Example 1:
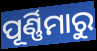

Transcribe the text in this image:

ପୂର୍ଣ୍ଣିମାରୁ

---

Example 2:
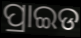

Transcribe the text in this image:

ପ୍ରାଇଡ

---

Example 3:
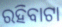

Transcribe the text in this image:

ରହିବାଟା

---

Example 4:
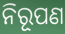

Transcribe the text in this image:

ନିରୂପଣ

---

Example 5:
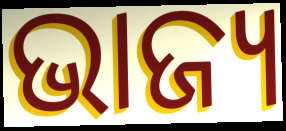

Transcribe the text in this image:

ଭାଜ୍ୟ